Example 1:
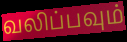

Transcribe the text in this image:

வலிப்பவும்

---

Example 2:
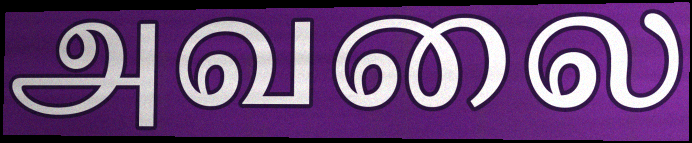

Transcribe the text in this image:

அவலை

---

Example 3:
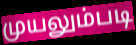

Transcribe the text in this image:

முயலும்படி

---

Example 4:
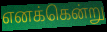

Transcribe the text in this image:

எனக்கென்று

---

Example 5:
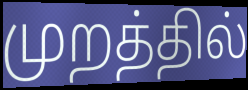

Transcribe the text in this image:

முறத்தில்